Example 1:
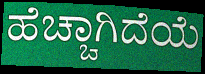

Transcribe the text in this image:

ಹೆಚ್ಚಾಗಿದೆಯೆ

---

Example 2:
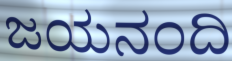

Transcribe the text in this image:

ಜಯನಂದಿ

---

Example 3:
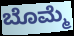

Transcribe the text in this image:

ಬೊಮ್ಮೆ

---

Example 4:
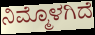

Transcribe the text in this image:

ನಿಮ್ಮೊಳಗಿದೆ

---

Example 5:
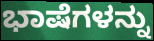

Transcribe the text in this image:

ಭಾಷೆಗಳನ್ನು